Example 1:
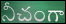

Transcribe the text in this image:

నీచంగా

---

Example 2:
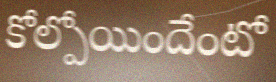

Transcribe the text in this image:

కోల్పోయిందేంటో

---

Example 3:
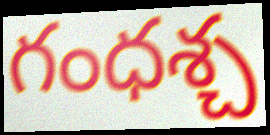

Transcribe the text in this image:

గంధశ్చ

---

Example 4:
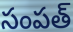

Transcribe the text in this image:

సంపత్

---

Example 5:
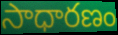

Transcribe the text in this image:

సాధారణం